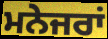
ਮਨੇਜਰਾਂ